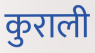
कुराली